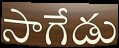
సాగేడు